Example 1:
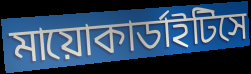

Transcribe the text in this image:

মায়োকার্ডাইটিসে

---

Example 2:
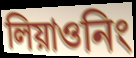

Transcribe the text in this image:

লিয়াওনিং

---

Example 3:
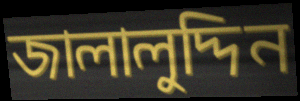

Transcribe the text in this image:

জালালুদ্দিন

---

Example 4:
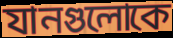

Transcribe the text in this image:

যানগুলোকে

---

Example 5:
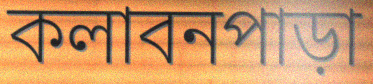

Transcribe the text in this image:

কলাবনপাড়া